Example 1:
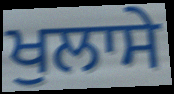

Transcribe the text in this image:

ਖੁਲਾਸੇ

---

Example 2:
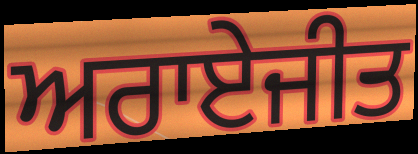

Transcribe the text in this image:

ਅਰਾਏਜੀਤ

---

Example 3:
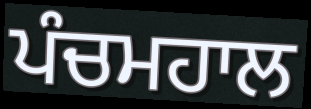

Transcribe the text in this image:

ਪੰਚਮਹਾਲ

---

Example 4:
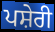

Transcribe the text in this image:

ਪਸ਼ੇਰੀ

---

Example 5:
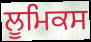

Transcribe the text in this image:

ਲੂਮਿਕਸ